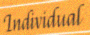
Individual